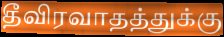
தீவிரவாதத்துக்கு